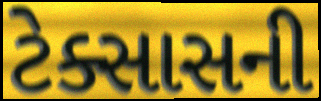
ટેક્સાસની